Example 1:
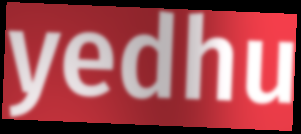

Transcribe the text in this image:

yedhu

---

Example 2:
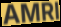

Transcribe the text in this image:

AMRI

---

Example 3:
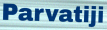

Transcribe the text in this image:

Parvatiji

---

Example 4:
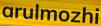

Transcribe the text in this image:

arulmozhi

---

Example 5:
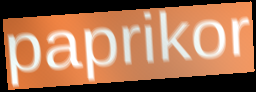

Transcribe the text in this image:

paprikor